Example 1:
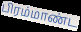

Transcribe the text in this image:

பிரம்மாண்ட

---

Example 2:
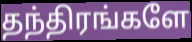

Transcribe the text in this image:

தந்திரங்களே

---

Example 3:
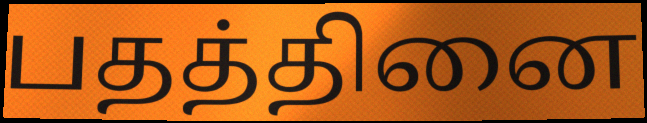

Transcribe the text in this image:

பதத்தினை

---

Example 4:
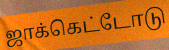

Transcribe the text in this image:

ஜாக்கெட்டோடு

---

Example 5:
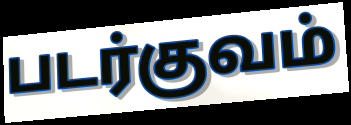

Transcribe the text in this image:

படர்குவம்